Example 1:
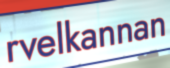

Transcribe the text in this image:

rvelkannan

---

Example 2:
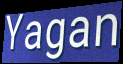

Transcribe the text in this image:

Yagan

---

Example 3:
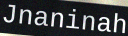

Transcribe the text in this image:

Jnaninah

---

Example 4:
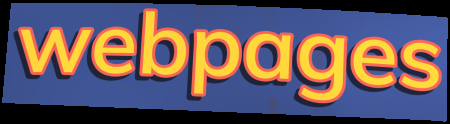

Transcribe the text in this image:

webpages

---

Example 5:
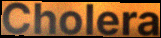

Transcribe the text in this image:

Cholera